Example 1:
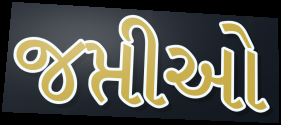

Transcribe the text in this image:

જપ્તીઓ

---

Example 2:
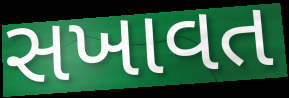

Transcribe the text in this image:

સખાવત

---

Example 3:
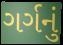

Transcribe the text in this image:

ગર્ગનું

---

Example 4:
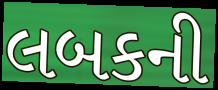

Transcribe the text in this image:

લબકની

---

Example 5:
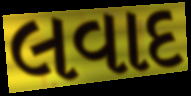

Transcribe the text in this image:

લવાદ